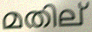
മതില്